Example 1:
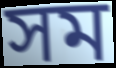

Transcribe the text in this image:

সম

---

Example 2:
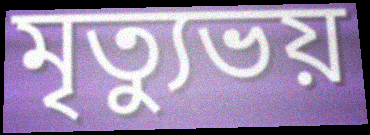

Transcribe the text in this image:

মৃত্যুভয়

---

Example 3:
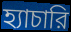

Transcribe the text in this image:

হ্যাচারি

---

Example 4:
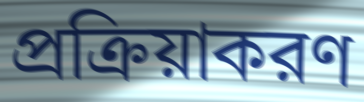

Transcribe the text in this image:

প্রক্রিয়াকরণ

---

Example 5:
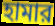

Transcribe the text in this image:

হামার